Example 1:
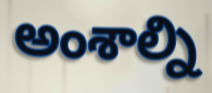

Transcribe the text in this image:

అంశాల్ని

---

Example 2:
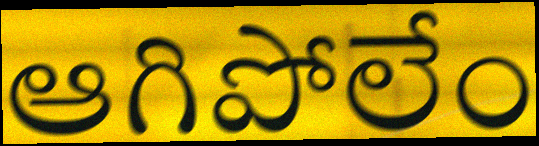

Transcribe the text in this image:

ఆగిపోలేం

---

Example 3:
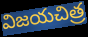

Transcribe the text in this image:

విజయచిత్ర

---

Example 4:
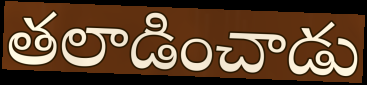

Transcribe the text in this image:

తలాడించాడు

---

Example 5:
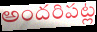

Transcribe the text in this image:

అందరిపట్ల